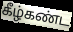
கீழ்கண்ட